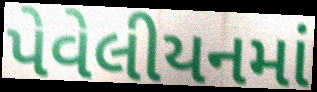
પેવેલીયનમાં